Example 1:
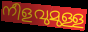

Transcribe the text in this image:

നീളവുമുള്ള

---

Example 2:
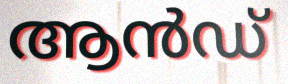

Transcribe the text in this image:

ആൻഡ്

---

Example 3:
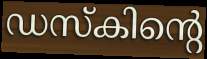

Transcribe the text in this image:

ഡസ്കിന്റെ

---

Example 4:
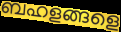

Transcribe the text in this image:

ബഹളങ്ങളെ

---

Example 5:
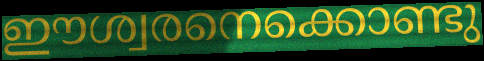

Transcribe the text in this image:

ഈശ്വരനെക്കൊണ്ടു